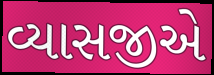
વ્યાસજીએ